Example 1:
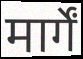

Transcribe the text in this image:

मार्गें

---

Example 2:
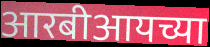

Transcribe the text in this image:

आरबीआयच्या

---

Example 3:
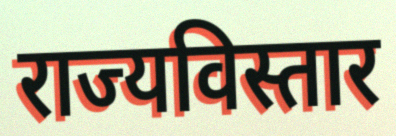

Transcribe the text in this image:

राज्यविस्तार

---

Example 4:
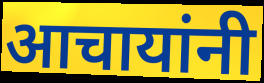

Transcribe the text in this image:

आचायांनी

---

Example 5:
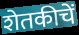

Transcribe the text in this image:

शेतकीचें